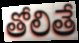
తోలితే